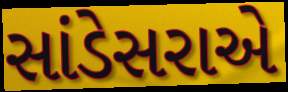
સાંડેસરાએ